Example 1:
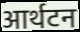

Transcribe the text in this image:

आर्थटन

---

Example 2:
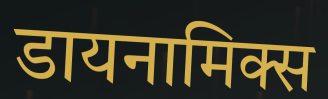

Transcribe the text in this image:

डायनामिक्स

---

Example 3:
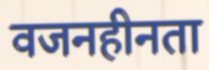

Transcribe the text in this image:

वजनहीनता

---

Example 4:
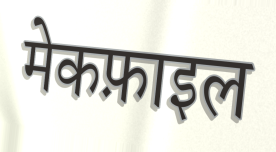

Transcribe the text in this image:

मेकफ़ाइल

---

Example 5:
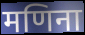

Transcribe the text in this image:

मणिना